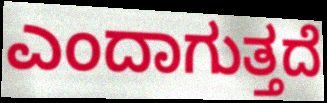
ಎಂದಾಗುತ್ತದೆ